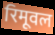
रिमूवल